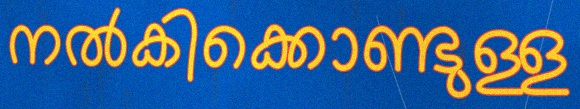
നൽകിക്കൊണ്ടുള്ള